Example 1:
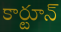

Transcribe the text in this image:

కార్టూన్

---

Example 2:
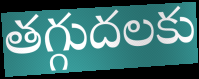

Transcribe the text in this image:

తగ్గుదలకు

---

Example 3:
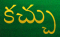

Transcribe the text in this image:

కచ్చు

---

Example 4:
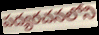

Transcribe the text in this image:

పద్యరచనలోని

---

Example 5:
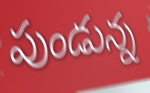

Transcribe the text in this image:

పుండున్న